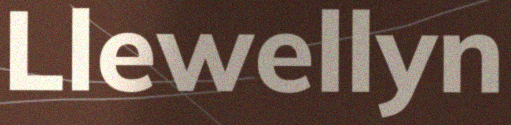
Llewellyn